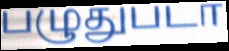
பழுதுபடா